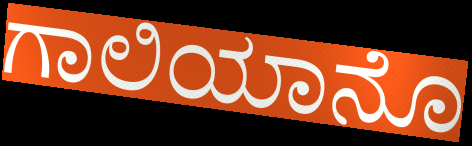
ಗಾಲಿಯಾನೊ